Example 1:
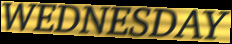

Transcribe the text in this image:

WEDNESDAY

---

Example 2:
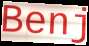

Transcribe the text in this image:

Benj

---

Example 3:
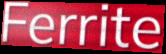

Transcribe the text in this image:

Ferrite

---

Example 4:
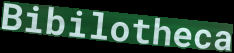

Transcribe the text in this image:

Bibilotheca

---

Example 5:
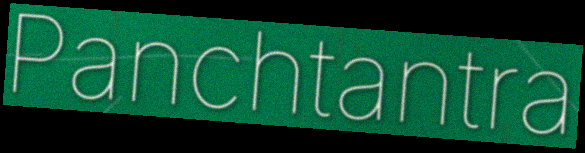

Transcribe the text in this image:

Panchtantra